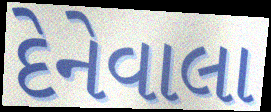
દેનેવાલા